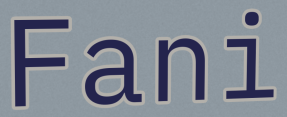
Fani